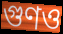
গুণও